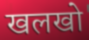
खलखो